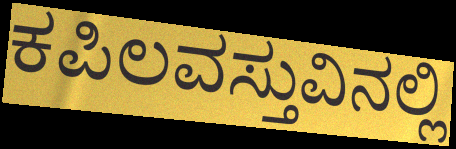
ಕಪಿಲವಸ್ತುವಿನಲ್ಲಿ